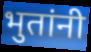
भुतांनी